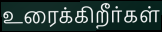
உரைக்கிறீர்கள்